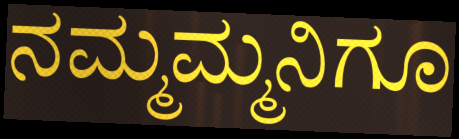
ನಮ್ಮಮ್ಮನಿಗೂ